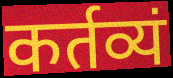
कर्तव्यं